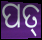
ପତ୍